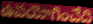
ఉపయోగించేది